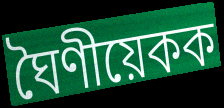
ঘৈণীয়েকক